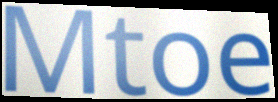
Mtoe